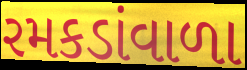
રમકડાંવાળા